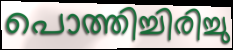
പൊത്തിച്ചിരിച്ചു